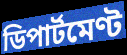
ডিপাৰ্টমেণ্ট